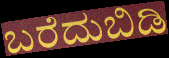
ಬರೆದುಬಿಡಿ